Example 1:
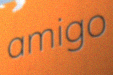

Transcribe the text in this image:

amigo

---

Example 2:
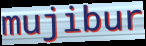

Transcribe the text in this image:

mujibur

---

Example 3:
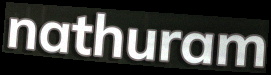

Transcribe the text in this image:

nathuram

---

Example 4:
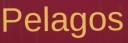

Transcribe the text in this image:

Pelagos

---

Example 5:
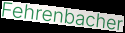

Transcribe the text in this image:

Fehrenbacher